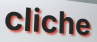
cliche